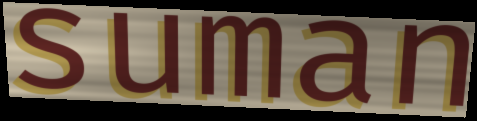
suman